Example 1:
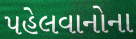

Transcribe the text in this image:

પહેલવાનોના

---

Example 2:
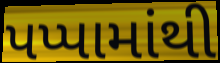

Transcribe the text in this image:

પપ્પામાંથી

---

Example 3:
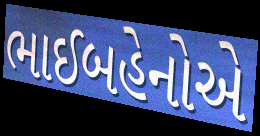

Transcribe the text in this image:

ભાઈબહેનોએ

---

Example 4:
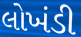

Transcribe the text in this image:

લોખંડી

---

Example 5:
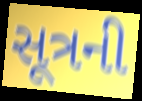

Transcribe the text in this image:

સૂત્રની